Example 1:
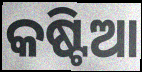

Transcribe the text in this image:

କଷ୍ଟିଆ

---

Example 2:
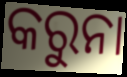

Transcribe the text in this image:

କରୁନା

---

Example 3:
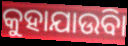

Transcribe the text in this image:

କୁହାଯାଉିବା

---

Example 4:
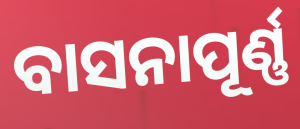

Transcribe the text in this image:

ବାସନାପୂର୍ଣ୍ଣ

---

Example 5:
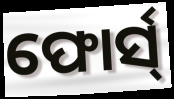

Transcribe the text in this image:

ଫୋର୍ସ୍